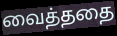
வைத்ததை